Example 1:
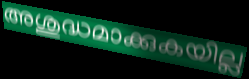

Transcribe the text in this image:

അശുദ്ധമാക്കുകയില്ല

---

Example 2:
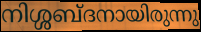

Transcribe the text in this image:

നിശ്ശബ്ദനായിരുന്നു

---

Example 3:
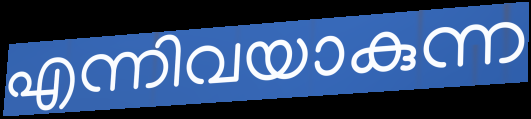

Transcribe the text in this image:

എന്നിവയാകുന്ന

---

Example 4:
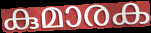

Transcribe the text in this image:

കുമാരക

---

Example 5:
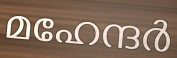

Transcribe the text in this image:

മഹേന്ദർ